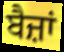
ਬੈਜ਼ਾਂ